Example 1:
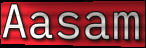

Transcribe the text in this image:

Aasam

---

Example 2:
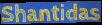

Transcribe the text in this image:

Shantidas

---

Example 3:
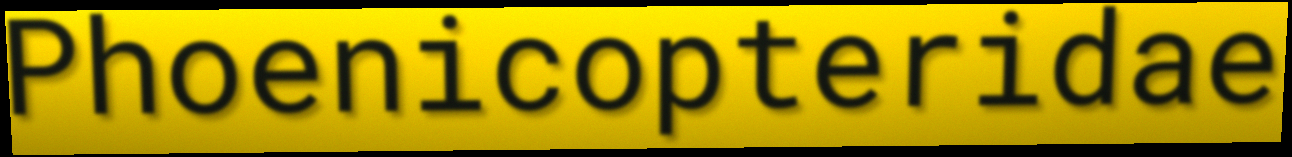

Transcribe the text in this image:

Phoenicopteridae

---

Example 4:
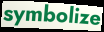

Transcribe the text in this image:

symbolize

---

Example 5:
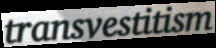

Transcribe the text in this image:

transvestitism